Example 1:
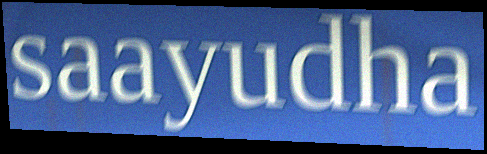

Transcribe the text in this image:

saayudha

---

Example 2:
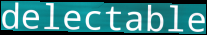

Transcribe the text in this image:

delectable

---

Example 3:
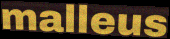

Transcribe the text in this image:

malleus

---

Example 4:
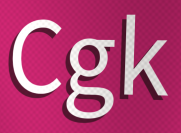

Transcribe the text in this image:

Cgk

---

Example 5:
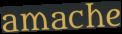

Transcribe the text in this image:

amache